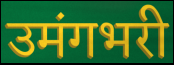
उमंगभरी